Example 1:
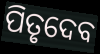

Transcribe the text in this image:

ପିତୃଦେବ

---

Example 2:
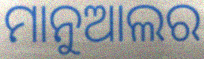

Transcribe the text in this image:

ମାନୁଆଲର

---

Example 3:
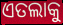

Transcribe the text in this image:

ଏତଲାକୁ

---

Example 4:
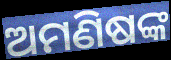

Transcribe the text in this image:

ଅମଣିଷଙ୍କ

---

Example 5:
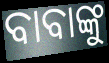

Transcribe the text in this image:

ବାବାଙ୍କୁ